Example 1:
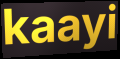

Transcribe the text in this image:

kaayi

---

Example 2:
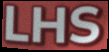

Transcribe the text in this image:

LHS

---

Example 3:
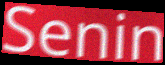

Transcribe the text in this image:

Senin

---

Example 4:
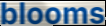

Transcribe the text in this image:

blooms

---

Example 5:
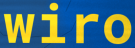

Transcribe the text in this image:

wiro